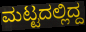
ಮಟ್ಟದಲ್ಲಿದ್ದ